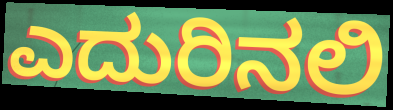
ಎದುರಿನಲಿ